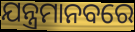
ଯନ୍ତ୍ରମାନବରେ